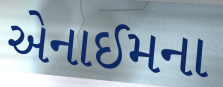
એનાઈમના